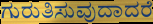
ಗುರುತಿಸುವುದಾದರೆ